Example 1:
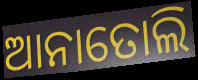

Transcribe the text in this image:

ଆନାତୋଲି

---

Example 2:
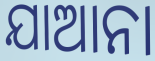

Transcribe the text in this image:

ଯାଆନା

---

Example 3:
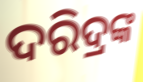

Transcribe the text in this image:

ଦରିଦ୍ରଙ୍କ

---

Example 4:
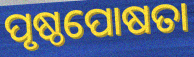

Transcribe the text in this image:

ପୃଷ୍ଠପୋଷତା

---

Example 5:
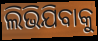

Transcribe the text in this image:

ଲିଭିଯିବାକୁ